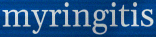
myringitis